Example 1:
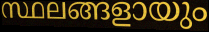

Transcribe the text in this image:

സ്ഥലങ്ങളായും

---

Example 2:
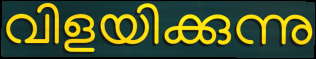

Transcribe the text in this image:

വിളയിക്കുന്നു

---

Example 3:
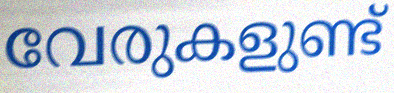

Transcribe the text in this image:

വേരുകളുണ്ട്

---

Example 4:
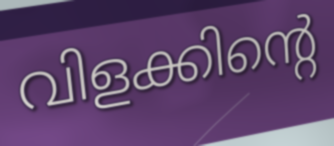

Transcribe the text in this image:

വിളക്കിന്റെ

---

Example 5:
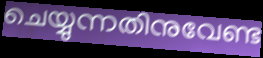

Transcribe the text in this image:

ചെയ്യുന്നതിനുവേണ്ട